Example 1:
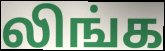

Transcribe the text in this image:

லிங்க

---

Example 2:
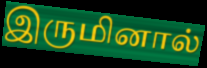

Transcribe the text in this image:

இருமினால்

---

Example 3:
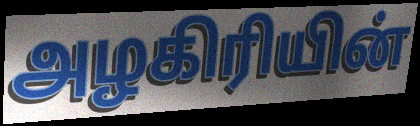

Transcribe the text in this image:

அழகிரியின்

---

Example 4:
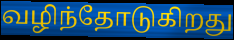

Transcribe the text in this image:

வழிந்தோடுகிறது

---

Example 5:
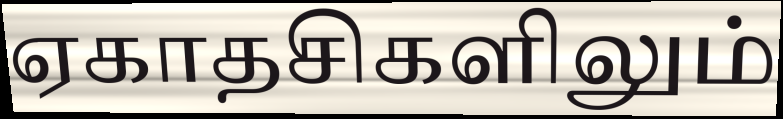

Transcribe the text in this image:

ஏகாதசிகளிலும்